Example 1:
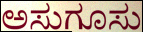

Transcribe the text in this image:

ಅಸುಗೂಸು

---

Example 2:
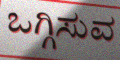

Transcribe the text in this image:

ಒಗ್ಗಿಸುವ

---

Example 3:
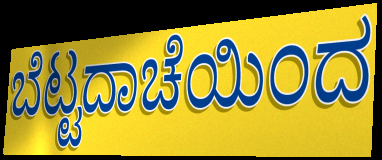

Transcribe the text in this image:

ಬೆಟ್ಟದಾಚೆಯಿಂದ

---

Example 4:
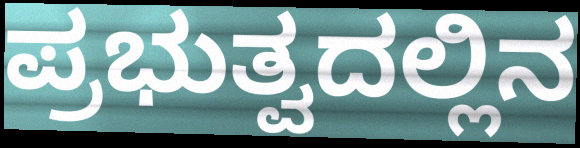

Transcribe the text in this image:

ಪ್ರಭುತ್ವದಲ್ಲಿನ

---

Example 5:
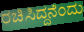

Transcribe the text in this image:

ರಚಿಸಿದ್ದನೆಂದು